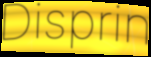
Disprin